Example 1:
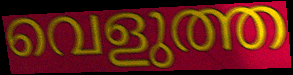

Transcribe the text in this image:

വെളുത്ത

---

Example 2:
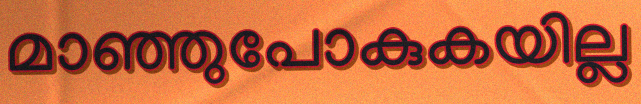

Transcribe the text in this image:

മാഞ്ഞുപോകുകയില്ല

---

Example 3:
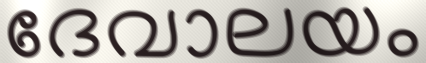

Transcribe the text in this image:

ദേവാലയം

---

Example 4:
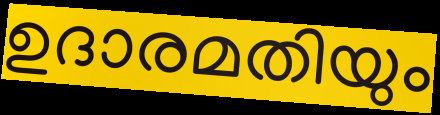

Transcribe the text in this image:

ഉദാരമതിയും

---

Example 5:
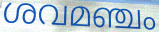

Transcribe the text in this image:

ശവമഞ്ചം